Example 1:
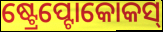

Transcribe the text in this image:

ଷ୍ଟ୍ରେପ୍ଟୋକୋକସ୍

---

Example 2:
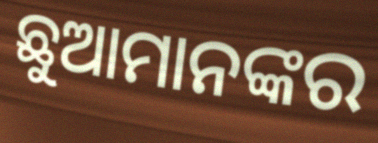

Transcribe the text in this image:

ଛୁଆମାନଙ୍କର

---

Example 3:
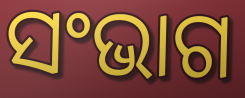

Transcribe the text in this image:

ସଂଭାଗ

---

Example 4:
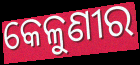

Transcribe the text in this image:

କେଳୁଣୀର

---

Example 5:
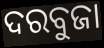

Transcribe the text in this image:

ଦରବୁଜା